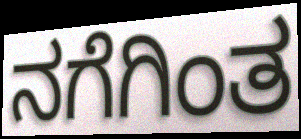
ನಗೆಗಿಂತ